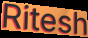
Ritesh